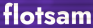
flotsam